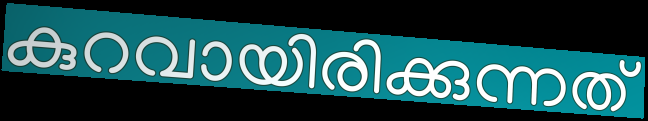
കുറവായിരിക്കുന്നത്